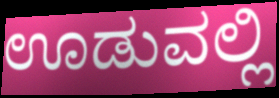
ಊಡುವಲ್ಲಿ